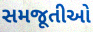
સમજૂતીઓ